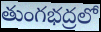
తుంగభద్రలో